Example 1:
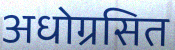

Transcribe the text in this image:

अधोग्रसित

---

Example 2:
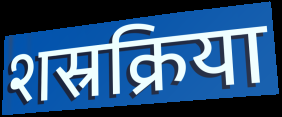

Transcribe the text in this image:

शस्रक्रिया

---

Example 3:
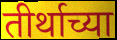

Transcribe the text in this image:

तीर्थाच्या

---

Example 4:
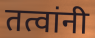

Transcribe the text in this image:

तत्वांनी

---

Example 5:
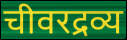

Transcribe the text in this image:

चीवरद्रव्य